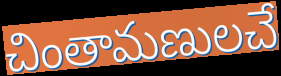
చింతామణులచే